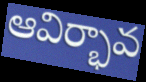
ఆవిర్భావ